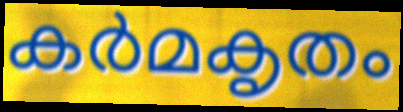
കർമകൃതം